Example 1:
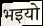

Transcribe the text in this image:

भइयो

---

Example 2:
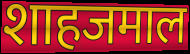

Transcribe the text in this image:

शाहजमाल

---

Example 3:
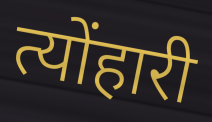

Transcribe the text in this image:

त्योंहारी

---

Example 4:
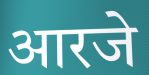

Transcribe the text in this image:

आरजे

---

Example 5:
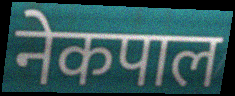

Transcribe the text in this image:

नेकपाल